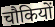
चौकियों